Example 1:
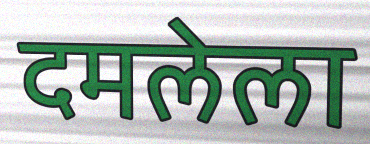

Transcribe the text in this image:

दमलेला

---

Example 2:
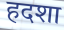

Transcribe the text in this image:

हदशा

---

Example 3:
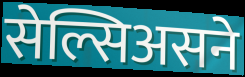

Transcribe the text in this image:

सेल्सिअसने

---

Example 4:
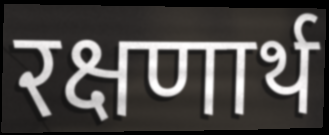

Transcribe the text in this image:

रक्षणार्थ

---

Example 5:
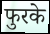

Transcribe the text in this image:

फुरके